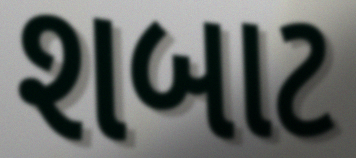
શબાટ